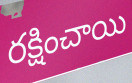
రక్షించాయి